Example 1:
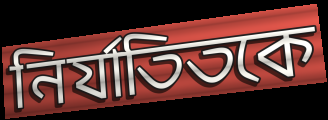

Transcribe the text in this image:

নির্যাতিতকে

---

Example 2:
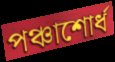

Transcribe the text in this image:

পঞ্চাশোর্ধ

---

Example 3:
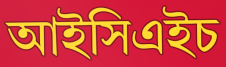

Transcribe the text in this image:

আইসিএইচ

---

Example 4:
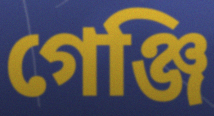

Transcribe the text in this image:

গেঞ্জি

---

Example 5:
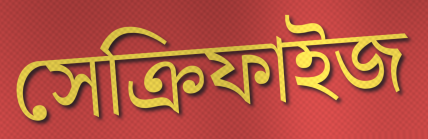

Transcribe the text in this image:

সেক্রিফাইজ